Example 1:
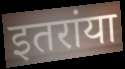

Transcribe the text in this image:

इतरांया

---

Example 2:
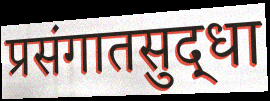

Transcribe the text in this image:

प्रसंगातसुद्धा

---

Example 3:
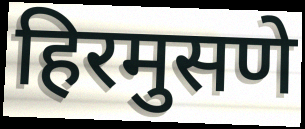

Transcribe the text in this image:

हिरमुसणे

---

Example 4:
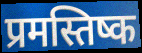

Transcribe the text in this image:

प्रमस्तिष्क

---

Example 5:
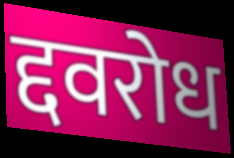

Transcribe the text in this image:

द्दवरोध